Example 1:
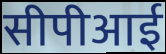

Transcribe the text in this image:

सीपीआई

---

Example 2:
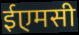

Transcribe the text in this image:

ईएमसी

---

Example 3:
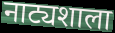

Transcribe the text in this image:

नाट्यशाला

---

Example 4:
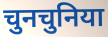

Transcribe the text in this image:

चुनचुनिया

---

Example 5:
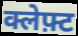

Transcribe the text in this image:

क्लेफ़्ट